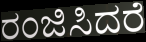
ರಂಜಿಸಿದರೆ